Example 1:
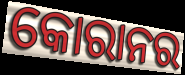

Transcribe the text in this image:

କୋରାନର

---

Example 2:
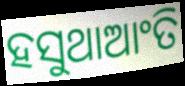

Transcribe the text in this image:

ହସୁଥାଆଂତି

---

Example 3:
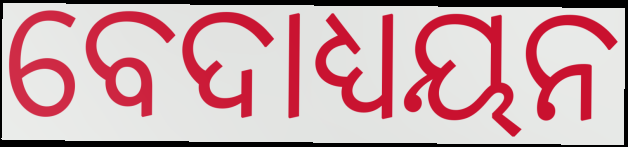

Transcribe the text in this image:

ବେଦାଧ୍ୟୟନ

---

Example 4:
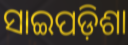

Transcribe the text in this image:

ସାଇପଡ଼ିଶା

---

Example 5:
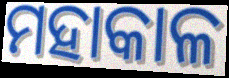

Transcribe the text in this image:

ମହାକାଳ